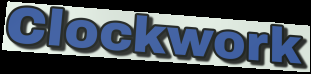
Clockwork